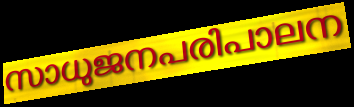
സാധുജനപരിപാലന